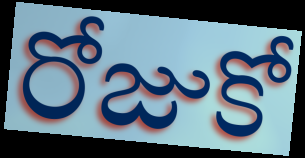
రోజుకో